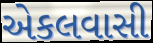
એકલવાસી